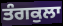
ਤੰਗਕੁਲਾ